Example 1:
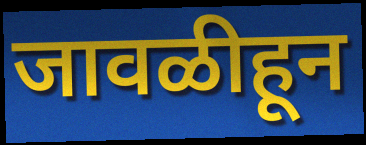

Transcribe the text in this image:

जावळीहून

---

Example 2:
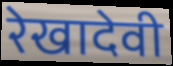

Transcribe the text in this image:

रेखादेवी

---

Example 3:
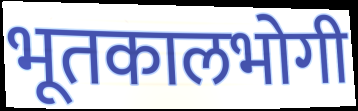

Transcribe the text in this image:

भूतकालभोगी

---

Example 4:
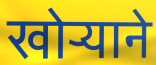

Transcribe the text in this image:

खोऱ्याने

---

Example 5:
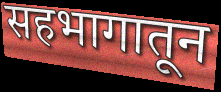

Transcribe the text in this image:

सहभागातून